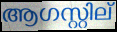
ആഗസ്റ്റില്